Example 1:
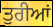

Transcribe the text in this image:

ਤੁਰੀਆਂ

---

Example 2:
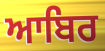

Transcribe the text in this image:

ਆਬਿਰ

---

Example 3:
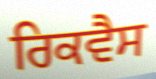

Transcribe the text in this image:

ਰਿਕਵੈਸ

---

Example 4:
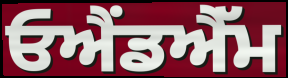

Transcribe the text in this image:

ਓਐਂਡਐੱਮ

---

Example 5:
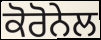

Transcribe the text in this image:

ਕੋਰੋਨੇਲ